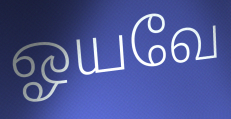
ஓயவே